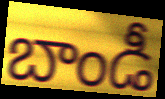
బాండీ